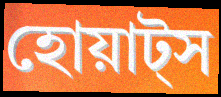
হোয়াট্স